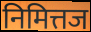
निमित्तज